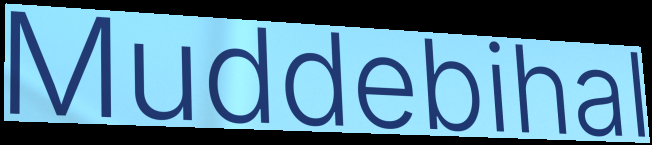
Muddebihal